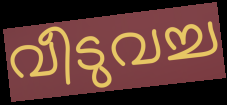
വീടുവച്ച